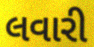
લવારી